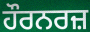
ਹੌਰਨਰਜ਼